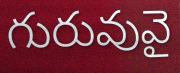
గురువువై